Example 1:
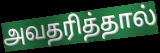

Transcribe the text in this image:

அவதரித்தால்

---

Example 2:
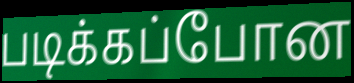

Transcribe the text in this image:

படிக்கப்போன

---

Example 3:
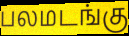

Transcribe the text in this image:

பலமடங்கு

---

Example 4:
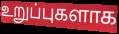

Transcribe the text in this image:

உறுப்புகளாக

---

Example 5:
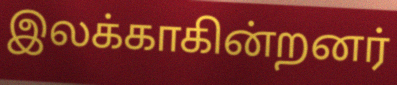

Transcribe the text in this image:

இலக்காகின்றனர்